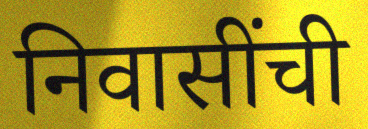
निवासींची